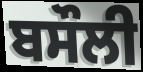
ਬਸੌਲੀ